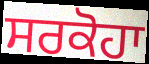
ਸਰਕੋਹਾ